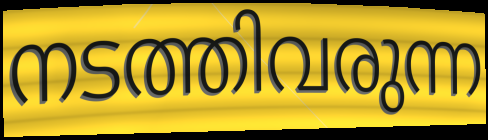
നടത്തിവരുന്ന